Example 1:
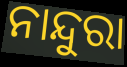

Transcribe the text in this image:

ନାନ୍ଦୁରା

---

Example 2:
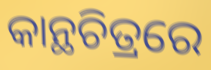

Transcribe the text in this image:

କାନ୍ଥଚିତ୍ରରେ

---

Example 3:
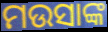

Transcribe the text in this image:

ମଉସାଙ୍କ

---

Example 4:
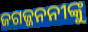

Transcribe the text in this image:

ଜଗଜ୍ଜନନୀଙ୍କୁ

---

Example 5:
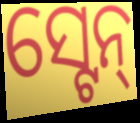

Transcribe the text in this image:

ସ୍ଟେନ୍